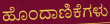
ಹೊಂದಾಣಿಕೆಗಳು